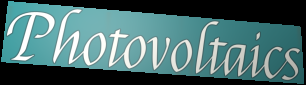
Photovoltaics